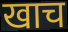
खाच